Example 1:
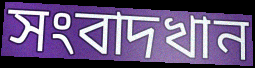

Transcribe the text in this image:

সংবাদখান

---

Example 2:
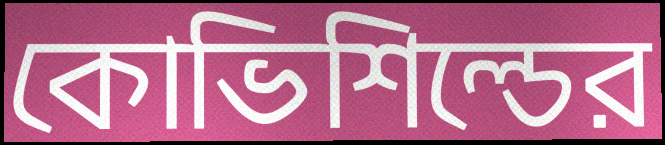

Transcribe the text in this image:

কোভিশিল্ডের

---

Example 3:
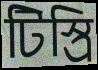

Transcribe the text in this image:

টিস্ত্রি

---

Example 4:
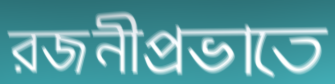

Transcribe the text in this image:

রজনীপ্রভাতে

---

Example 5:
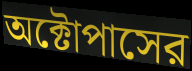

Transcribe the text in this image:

অক্টোপাসের